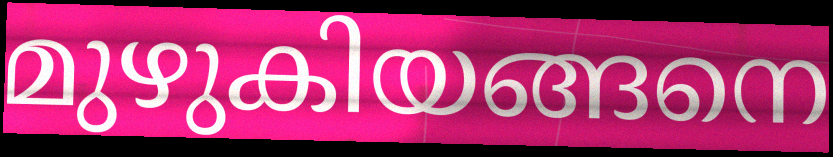
മുഴുകിയങ്ങനെ